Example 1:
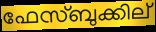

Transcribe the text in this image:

ഫേസ്ബുക്കില്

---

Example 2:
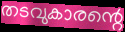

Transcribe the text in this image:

തടവുകാരന്റെ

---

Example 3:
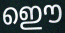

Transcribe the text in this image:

ഇൌ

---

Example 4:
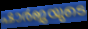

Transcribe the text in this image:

ഷാർജയുടെ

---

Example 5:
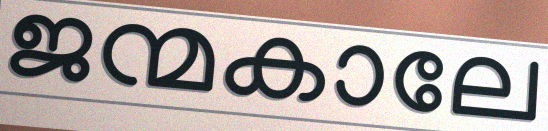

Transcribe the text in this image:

ജന്മകാലേ